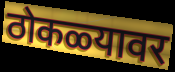
ठोकळ्यावर